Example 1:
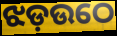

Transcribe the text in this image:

ଝଡ଼ଉଠେ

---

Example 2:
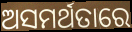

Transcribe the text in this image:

ଅସମର୍ଥତାରେ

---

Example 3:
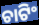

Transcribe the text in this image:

ଚାଟିଂ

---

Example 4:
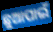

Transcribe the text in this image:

ଛୁଆପାଇଁ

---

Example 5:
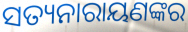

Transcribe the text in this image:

ସତ୍ୟନାରାୟଣଙ୍କର